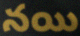
నయి